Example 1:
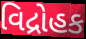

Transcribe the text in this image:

વિદ્રોહક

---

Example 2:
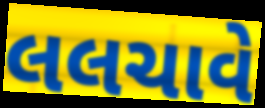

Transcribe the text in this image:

લલચાવે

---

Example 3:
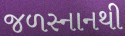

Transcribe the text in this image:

જળસ્નાનથી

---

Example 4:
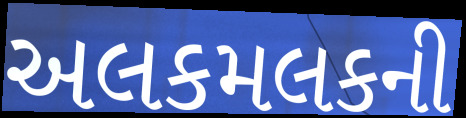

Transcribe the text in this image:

અલકમલકની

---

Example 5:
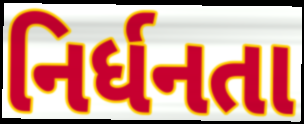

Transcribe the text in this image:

નિર્ધનતા